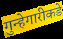
गुन्हेगारीकडे